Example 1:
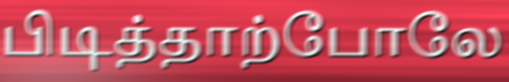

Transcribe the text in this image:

பிடித்தாற்போலே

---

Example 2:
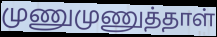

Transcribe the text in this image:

முணுமுணுத்தாள்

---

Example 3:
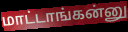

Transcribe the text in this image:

மாட்டாங்கன்னு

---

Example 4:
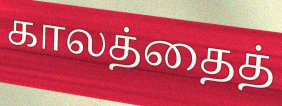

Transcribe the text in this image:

காலத்தைத்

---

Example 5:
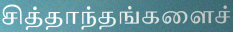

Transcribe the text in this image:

சித்தாந்தங்களைச்